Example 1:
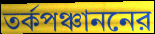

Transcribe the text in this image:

তর্কপঞ্চাননের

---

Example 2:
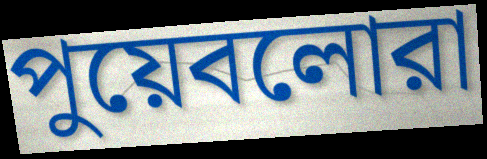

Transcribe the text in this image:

পুয়েবলোরা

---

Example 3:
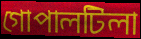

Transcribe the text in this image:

গোপালটিলা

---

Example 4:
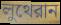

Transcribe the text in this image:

লুথেরান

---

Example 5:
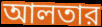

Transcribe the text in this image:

আলতার